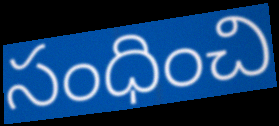
సంధించి